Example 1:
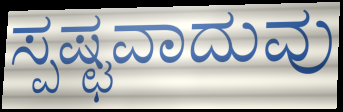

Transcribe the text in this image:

ಸ್ಪಷ್ಟವಾದುವು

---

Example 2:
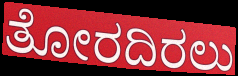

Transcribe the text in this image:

ತೋರದಿರಲು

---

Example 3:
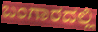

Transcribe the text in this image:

ಬಂಗಾರದಲ್ಲಿ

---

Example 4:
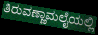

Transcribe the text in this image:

ತಿರುವಣ್ಣಾಮಲೈಯಲ್ಲಿ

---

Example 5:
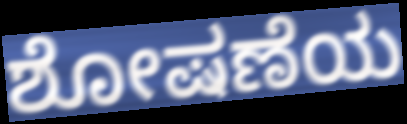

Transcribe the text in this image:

ಶೋಷಣೆಯ